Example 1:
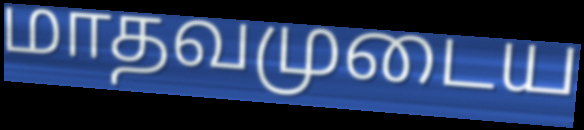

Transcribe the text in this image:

மாதவமுடைய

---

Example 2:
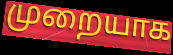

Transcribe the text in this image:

முறையாக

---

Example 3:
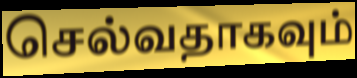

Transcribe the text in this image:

செல்வதாகவும்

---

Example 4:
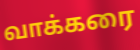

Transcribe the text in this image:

வாக்கரை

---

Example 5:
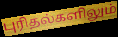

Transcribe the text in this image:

புரிதல்களிலும்